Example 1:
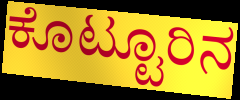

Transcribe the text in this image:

ಕೊಟ್ಟೂರಿನ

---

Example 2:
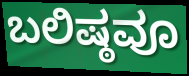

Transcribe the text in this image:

ಬಲಿಷ್ಠವೂ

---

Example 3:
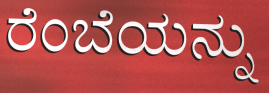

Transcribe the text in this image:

ರೆಂಬೆಯನ್ನು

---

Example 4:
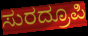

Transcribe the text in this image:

ಸುರದ್ರೂಪಿ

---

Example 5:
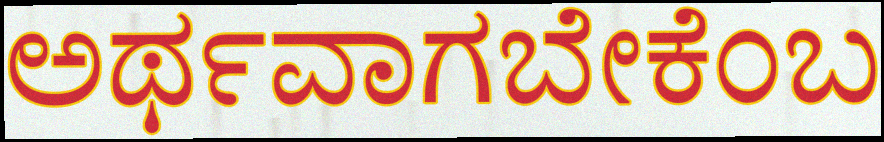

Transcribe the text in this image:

ಅರ್ಥವಾಗಬೇಕೆಂಬ